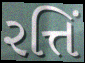
રત્તિં